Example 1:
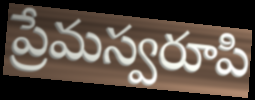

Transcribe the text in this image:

ప్రేమస్వరూపి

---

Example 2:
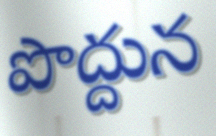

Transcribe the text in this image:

పొద్దున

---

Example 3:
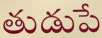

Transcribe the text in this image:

తుడుపే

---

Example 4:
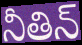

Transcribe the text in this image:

నీతిన్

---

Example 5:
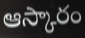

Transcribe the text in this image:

ఆస్కారం